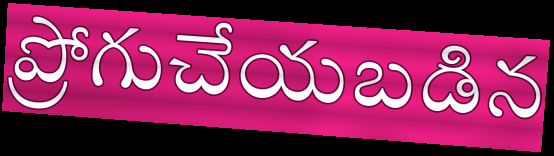
ప్రోగుచేయబడిన